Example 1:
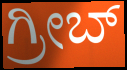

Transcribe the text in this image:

ಗ್ರೀಬ್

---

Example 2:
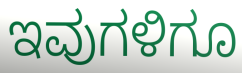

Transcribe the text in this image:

ಇವುಗಳಿಗೂ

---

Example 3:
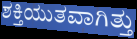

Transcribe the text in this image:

ಶಕ್ತಿಯುತವಾಗಿತ್ತು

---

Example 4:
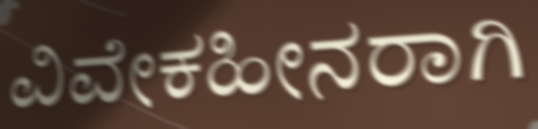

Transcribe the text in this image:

ವಿವೇಕಹೀನರಾಗಿ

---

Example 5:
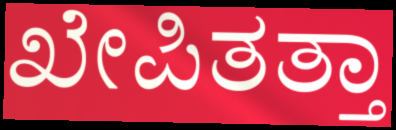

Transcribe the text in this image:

ಖೇಪಿತತ್ತಾ